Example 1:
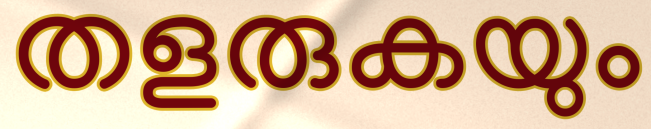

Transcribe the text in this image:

തളരുകയും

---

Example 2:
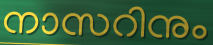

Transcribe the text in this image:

നാസറിനും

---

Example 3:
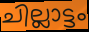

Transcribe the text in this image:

ചില്ലാട്ടം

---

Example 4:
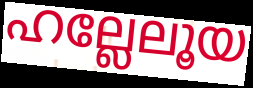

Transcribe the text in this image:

ഹല്ലേലൂയ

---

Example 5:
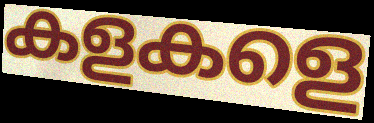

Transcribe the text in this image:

കളകളെ